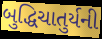
બુદ્ધિચાતુર્યની